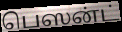
பெஸன்ட்